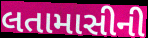
લતામાસીની